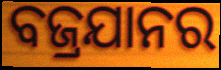
ବଜ୍ରଯାନର